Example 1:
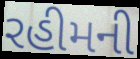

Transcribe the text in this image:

રહીમની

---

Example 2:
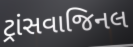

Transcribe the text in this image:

ટ્રાંસવાજિનલ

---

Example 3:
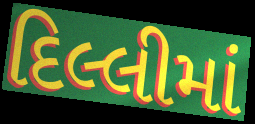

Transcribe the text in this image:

દિલ્લીમાં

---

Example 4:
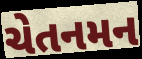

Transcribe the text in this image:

ચેતનમન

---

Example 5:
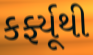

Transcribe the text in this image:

કર્ફ્યૂથી